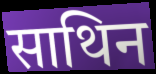
साथिन